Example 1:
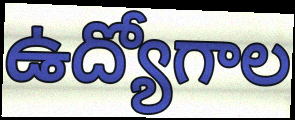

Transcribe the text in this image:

ఉద్యోగాల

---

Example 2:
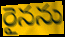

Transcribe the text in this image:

రైనను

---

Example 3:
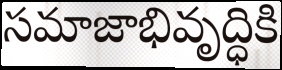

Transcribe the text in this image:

సమాజాభివృద్ధికి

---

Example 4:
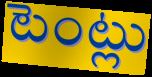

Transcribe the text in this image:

టెంట్లు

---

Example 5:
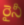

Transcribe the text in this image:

రైనీ